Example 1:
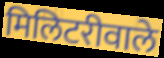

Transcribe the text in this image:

मिलिटरीवाले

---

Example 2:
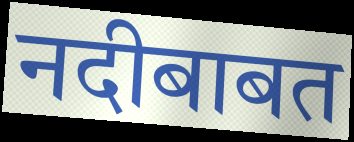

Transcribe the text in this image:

नदीबाबत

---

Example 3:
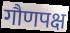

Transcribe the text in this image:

गौणपक्ष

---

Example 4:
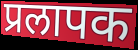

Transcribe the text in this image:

प्रलापक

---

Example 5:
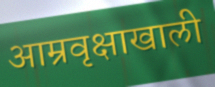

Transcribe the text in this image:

आम्रवृक्षाखाली